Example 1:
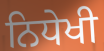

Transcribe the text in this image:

ਨਿਧੇਖੀ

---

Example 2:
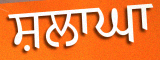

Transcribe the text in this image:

ਸ਼ਲਾਘਾ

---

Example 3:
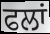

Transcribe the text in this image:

ਫਲਾਂ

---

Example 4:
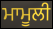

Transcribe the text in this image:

ਮਾਮੂਲੀ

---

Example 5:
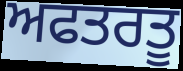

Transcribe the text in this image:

ਅਫਤਰਤੂ